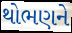
થોભણને